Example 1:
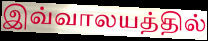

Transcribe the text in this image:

இவ்வாலயத்தில்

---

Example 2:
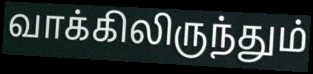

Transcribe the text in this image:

வாக்கிலிருந்தும்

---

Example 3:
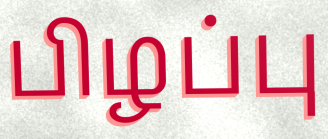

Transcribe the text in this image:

பிழப்பு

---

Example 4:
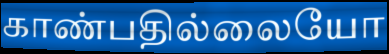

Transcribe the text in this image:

காண்பதில்லையோ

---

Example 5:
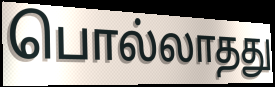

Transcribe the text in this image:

பொல்லாதது